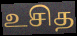
உசித